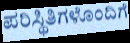
ಪರಿಸ್ಥಿತಿಗಳೊಂದಿಗೆ